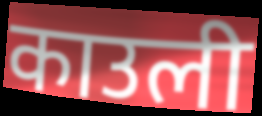
काउली